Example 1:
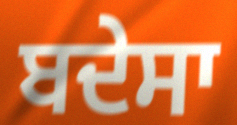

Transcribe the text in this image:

ਬਦੇਸਾ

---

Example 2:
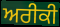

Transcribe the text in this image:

ਅਰੀਕੀ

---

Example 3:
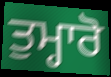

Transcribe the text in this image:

ਤੁਮ੍ਹ੍ਹਾਰੋ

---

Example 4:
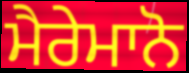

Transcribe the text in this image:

ਮੈਰੇਮਾਨੋ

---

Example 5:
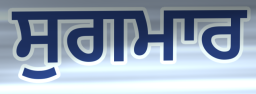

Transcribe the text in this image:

ਸੁਗਮਾਰ